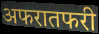
अफरातफरी